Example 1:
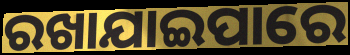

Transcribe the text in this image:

ରଖାଯାଇପାରେ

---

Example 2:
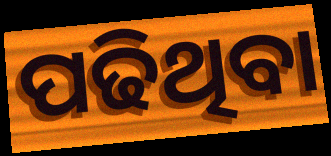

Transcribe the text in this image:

ପଢିଥିବା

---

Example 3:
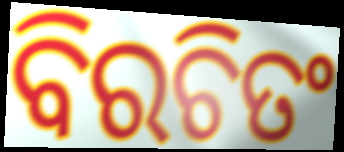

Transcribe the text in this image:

ବିରଚିତଂ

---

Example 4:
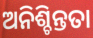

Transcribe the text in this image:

ଅନିଶ୍ଚିନ୍ତତା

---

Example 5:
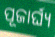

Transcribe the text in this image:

ପୂଜାର୍ଘ୍ୟ